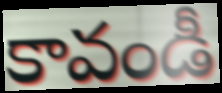
కావండీ